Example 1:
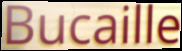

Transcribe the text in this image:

Bucaille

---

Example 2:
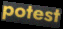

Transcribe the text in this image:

potest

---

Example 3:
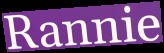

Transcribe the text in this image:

Rannie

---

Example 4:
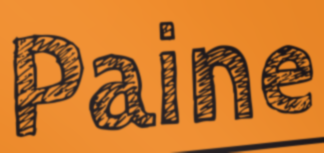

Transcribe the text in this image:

Paine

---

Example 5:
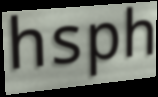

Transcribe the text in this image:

hsph